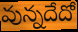
వున్నదేదో